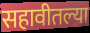
सहावीतल्या